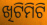
ଖିଟିମିଟି